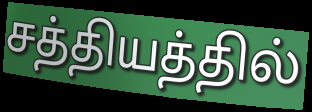
சத்தியத்தில்